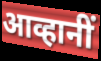
आव्हानीं